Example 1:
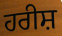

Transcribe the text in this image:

ਹਰੀਸ਼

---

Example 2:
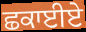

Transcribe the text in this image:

ਛਕਾਈਏ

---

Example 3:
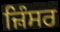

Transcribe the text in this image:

ਜ਼ਿੰਸਰ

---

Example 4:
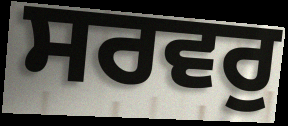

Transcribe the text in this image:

ਸਰਵਰੁ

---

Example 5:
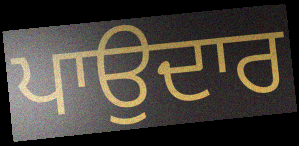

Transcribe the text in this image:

ਪਾਉਦਾਰ